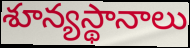
శూన్యస్థానాలు